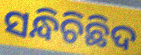
ସନ୍ଧିଚିଛିଦ